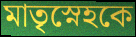
মাতৃস্নেহকে